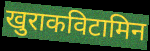
खुराकविटामिन